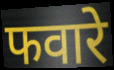
फवारे